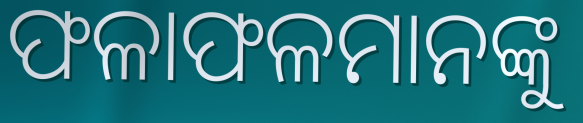
ଫଳାଫଳମାନଙ୍କୁ